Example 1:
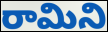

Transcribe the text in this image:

రామిని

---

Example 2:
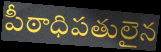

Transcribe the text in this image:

పీఠాధిపతులైన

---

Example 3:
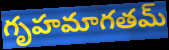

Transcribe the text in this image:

గృహమాగతమ్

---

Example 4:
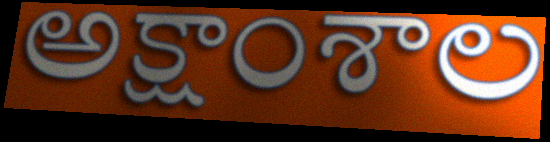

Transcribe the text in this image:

అక్షాంశాల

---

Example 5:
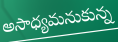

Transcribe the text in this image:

అసాధ్యమనుకున్న